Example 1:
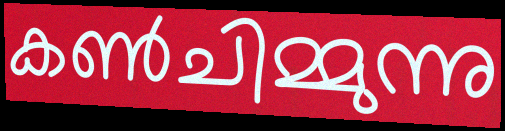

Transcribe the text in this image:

കൺചിമ്മുന്നു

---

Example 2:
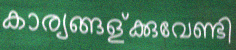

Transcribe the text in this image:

കാര്യങ്ങള്ക്കുവേണ്ടി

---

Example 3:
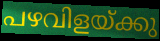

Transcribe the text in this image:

പഴവിളയ്ക്കു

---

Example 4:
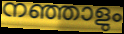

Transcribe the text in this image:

നഞ്ഞാളും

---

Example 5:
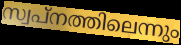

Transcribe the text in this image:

സ്വപ്നത്തിലെന്നും